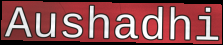
Aushadhi